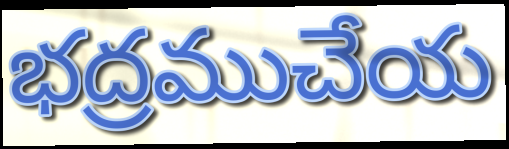
భద్రముచేయ